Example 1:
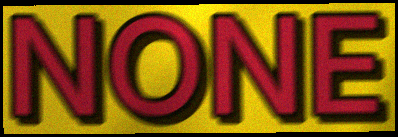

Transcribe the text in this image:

NONE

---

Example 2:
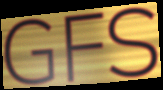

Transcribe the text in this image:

GFS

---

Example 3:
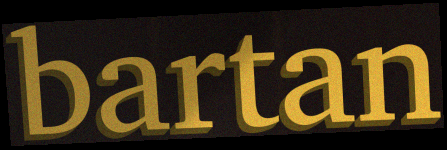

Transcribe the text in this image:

bartan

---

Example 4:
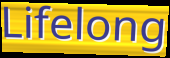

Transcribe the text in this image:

Lifelong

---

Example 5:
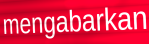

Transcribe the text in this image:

mengabarkan